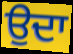
ਉਦਾ